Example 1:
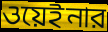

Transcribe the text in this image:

ওয়েইনার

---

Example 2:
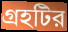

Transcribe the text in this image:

গ্রহটির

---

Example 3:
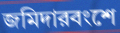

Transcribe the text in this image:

জমিদারবংশে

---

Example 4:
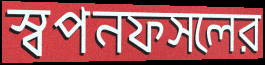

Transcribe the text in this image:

স্বপনফসলের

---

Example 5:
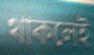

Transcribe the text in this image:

থাকলেই